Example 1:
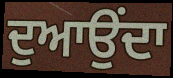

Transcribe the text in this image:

ਦੁਆਉਂਦਾ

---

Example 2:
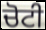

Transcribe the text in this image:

ਚੋਟੀ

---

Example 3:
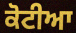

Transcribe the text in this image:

ਕੋਟੀਆ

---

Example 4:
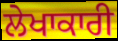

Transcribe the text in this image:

ਲੇਖਾਕਾਰੀ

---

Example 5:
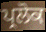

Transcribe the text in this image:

ਪ੍ਰਲੋਕ